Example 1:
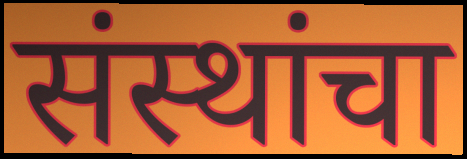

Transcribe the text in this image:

संस्थांचा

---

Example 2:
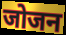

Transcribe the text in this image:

जोजन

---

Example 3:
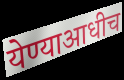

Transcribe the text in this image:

येण्याआधीच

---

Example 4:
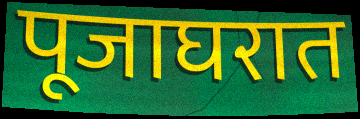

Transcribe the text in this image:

पूजाघरात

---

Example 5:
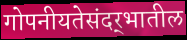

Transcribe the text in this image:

गोपनीयतेसंदर्भातील